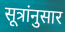
सूत्रांनुसार